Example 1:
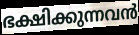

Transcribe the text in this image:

ഭക്ഷിക്കുന്നവൻ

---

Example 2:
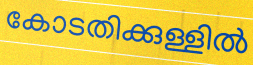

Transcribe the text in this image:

കോടതിക്കുള്ളിൽ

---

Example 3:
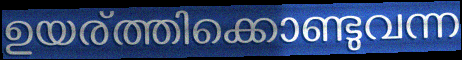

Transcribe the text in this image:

ഉയര്ത്തിക്കൊണ്ടുവന്ന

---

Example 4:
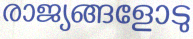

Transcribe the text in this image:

രാജ്യങ്ങളോടു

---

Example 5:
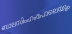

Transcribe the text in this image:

ബാലസിംഹംപോലെയും